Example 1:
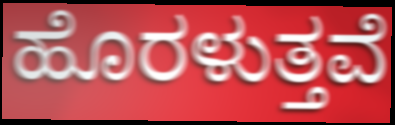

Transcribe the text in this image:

ಹೊರಳುತ್ತವೆ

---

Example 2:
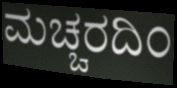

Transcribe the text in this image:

ಮಚ್ಚರದಿಂ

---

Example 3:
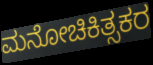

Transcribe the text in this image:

ಮನೋಚಿಕಿತ್ಸಕರ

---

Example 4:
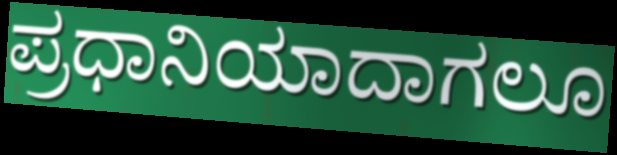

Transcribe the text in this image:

ಪ್ರಧಾನಿಯಾದಾಗಲೂ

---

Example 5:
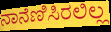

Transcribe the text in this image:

ನಾನೆಣಿಸಿರಲಿಲ್ಲ